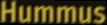
Hummus